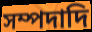
সম্পদাদি